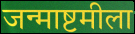
जन्माष्टमीला